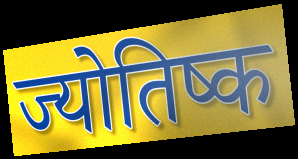
ज्योतिष्क